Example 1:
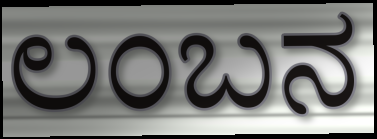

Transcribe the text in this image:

ಲಂಬನ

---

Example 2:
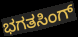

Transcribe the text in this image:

ಭಗತಸಿಂಗ್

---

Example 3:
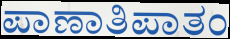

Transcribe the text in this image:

ಪಾಣಾತಿಪಾತಂ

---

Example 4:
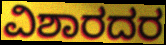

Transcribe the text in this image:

ವಿಶಾರದರ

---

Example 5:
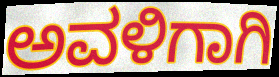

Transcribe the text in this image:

ಅವಳಿಗಾಗಿ